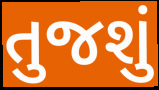
તુજશું